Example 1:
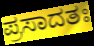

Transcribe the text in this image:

ಪ್ರಸಾದತಃ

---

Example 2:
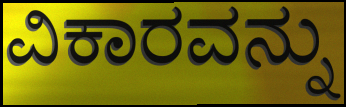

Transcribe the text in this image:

ವಿಕಾರವನ್ನು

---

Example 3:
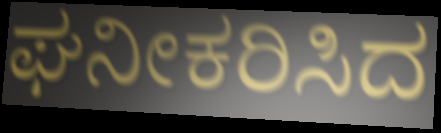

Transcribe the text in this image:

ಘನೀಕರಿಸಿದ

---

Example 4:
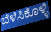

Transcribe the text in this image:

ಬೆಳೆಸಿಕೊಳ್ಳಿ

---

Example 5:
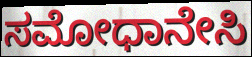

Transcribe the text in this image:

ಸಮೋಧಾನೇಸಿ